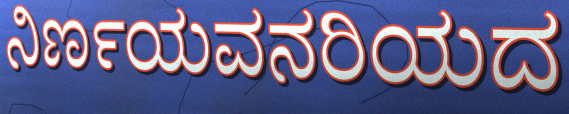
ನಿರ್ಣಯವನರಿಯದ